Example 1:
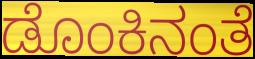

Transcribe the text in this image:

ಡೊಂಕಿನಂತೆ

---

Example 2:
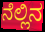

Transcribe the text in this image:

ನೆಲ್ಲಿನ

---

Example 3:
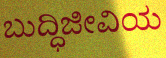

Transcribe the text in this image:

ಬುದ್ಧಿಜೀವಿಯ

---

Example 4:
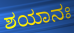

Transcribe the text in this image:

ಶಯಾನಃ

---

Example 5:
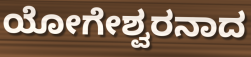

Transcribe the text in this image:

ಯೋಗೇಶ್ವರನಾದ